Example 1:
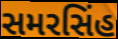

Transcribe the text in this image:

સમરસિંહ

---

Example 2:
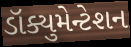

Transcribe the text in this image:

ડૉક્યુમેન્ટેશન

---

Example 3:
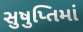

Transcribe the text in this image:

સુષુપ્તિમાં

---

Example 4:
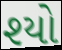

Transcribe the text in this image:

શ્યો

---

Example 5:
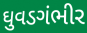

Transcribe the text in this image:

ઘુવડગંભીર